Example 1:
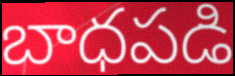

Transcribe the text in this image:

బాధపడి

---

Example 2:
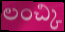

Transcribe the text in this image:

లంచ్కి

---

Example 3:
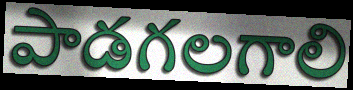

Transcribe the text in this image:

పాడగలగాలి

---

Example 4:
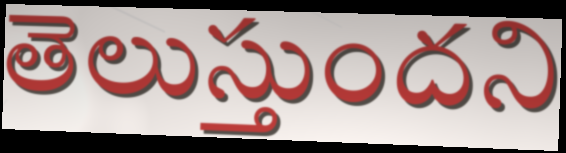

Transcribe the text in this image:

తెలుస్తుందని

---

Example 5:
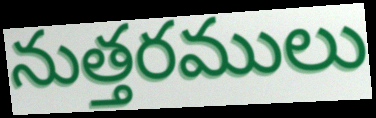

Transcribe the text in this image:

నుత్తరములు